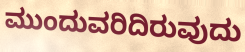
ಮುಂದುವರಿದಿರುವುದು